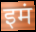
इमं